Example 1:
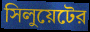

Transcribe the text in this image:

সিলুয়েটের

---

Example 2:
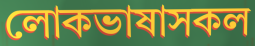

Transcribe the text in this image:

লোকভাষাসকল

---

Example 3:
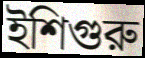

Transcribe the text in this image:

ইশিগুরু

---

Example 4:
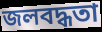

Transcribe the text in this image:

জলবদ্ধতা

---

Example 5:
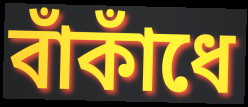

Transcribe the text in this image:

বাঁকাঁধে